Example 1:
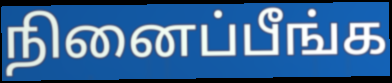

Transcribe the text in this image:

நினைப்பீங்க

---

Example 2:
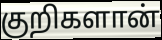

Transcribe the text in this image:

குறிகளான்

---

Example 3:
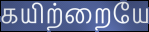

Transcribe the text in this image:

கயிற்றையே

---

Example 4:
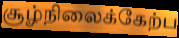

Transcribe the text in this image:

சூழ்நிலைக்கேற்ப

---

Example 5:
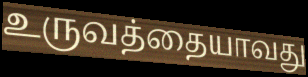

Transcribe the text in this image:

உருவத்தையாவது